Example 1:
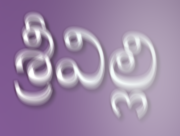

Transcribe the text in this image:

శ్రీవిల్లి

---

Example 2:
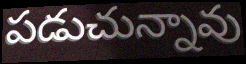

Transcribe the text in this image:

పడుచున్నావు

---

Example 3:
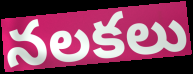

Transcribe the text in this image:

నలకలు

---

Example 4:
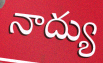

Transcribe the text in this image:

నాద్యు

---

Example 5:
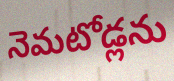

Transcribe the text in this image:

నెమటోడ్లను